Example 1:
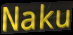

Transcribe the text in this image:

Naku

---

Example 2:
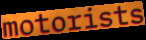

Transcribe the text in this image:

motorists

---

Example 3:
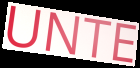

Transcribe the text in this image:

UNTE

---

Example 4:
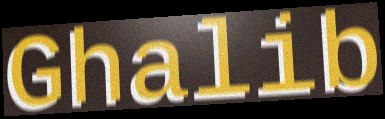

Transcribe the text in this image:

Ghalib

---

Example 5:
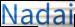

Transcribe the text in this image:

Nadai